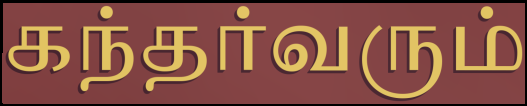
கந்தர்வரும்